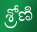
శ్రోణి